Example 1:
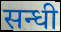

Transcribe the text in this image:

सन्धी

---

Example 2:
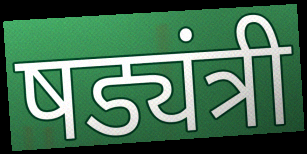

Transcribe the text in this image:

षड्यंत्री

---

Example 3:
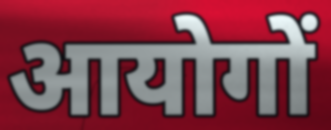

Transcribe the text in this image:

आयोगों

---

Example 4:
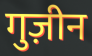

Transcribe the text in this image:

गुज़ीन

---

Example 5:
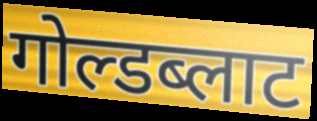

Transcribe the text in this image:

गोल्डब्लाट